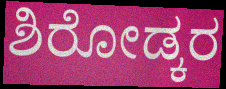
ಶಿರೋಡ್ಕರ